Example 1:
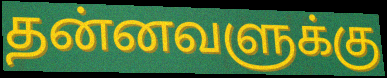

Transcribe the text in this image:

தன்னவளுக்கு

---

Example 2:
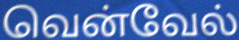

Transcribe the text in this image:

வென்வேல்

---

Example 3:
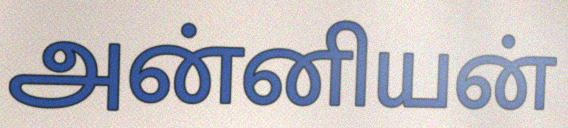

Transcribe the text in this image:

அன்னியன்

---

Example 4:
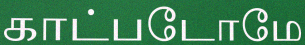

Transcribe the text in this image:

காட்படோமே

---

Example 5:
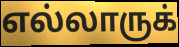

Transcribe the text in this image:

எல்லாருக்